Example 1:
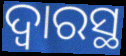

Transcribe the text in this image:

ଦ୍ବାରସ୍ଥ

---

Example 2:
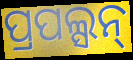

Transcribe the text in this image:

ପ୍ରପଲ୍ସନ୍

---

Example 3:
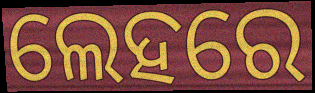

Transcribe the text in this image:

ଲେହରେ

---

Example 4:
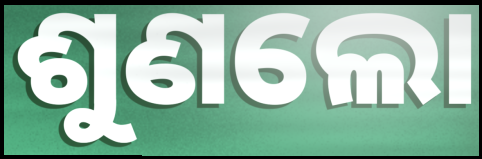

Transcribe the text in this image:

ଶୁଣଲୋ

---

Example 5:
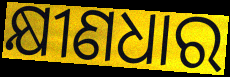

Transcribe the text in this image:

କ୍ଷୀଣଧାର